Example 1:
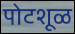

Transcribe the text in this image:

पोटशूळ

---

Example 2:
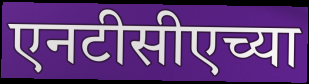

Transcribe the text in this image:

एनटीसीएच्या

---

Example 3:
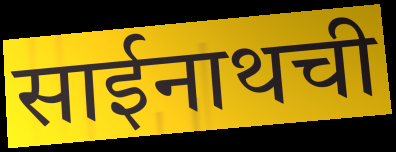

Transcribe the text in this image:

साईनाथची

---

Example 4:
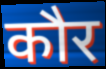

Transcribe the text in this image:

कौर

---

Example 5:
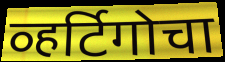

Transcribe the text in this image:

व्हर्टिगोचा